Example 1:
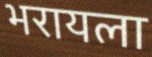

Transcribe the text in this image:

भरायला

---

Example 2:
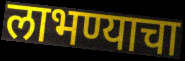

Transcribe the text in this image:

लाभण्याचा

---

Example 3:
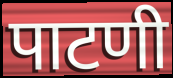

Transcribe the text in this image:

पाटणी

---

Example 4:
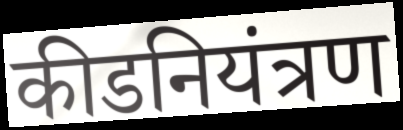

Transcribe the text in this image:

कीडनियंत्रण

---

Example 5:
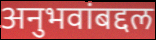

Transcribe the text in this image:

अनुभवांबद्दल